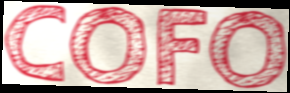
COFO